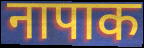
नापाक